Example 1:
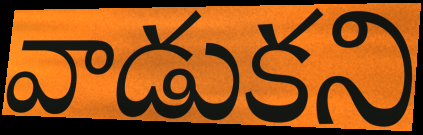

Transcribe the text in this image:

వాడుకని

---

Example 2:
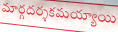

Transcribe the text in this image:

మార్గదర్శకమయ్యాయి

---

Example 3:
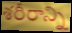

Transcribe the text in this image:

శరీరాన్ని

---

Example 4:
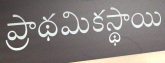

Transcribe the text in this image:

ప్రాథమికస్థాయి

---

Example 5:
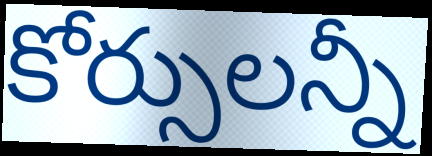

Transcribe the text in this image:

కోర్సులన్నీ